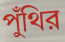
পুঁথির